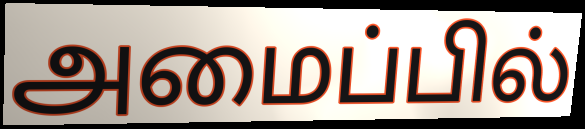
அமைப்பில்